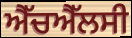
ਐੱਚਐੱਲਸੀ